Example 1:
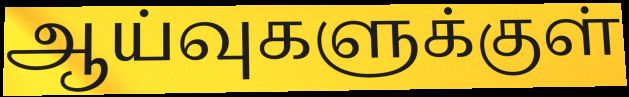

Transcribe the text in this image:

ஆய்வுகளுக்குள்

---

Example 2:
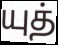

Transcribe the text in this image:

யுத்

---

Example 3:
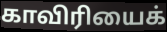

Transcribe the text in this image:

காவிரியைக்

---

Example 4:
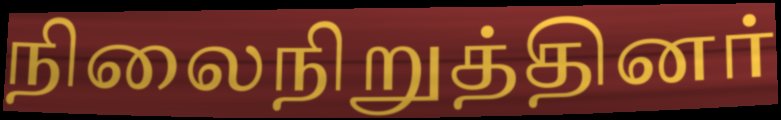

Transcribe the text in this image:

நிலைநிறுத்தினர்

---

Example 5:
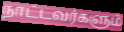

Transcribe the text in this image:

நாட்டவர்களும்